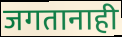
जगतानाही